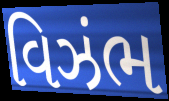
વિઝંભ